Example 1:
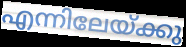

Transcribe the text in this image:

എന്നിലേയ്ക്കു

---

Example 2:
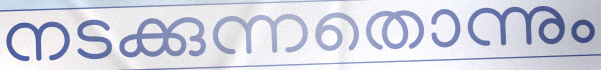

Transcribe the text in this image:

നടക്കുന്നതൊന്നും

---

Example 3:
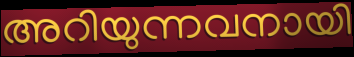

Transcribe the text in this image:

അറിയുന്നവനായി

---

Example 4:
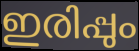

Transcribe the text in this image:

ഇരിപ്പും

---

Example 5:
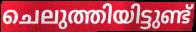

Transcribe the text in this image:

ചെലുത്തിയിട്ടുണ്ട്